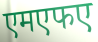
एमएफए